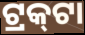
ଟ୍ରକ୍‌ଟା